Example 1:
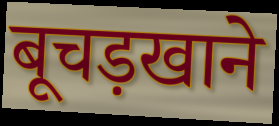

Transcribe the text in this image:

बूचड़खाने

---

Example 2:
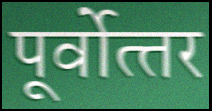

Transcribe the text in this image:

पूर्वोत्‍तर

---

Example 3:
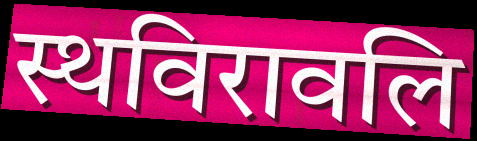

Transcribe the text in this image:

स्थविरावलि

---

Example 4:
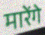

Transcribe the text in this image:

मारेंगे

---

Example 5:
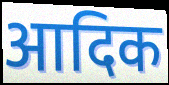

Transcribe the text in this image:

आदिक